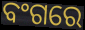
ବଂଗରେ